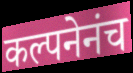
कल्पनेनंच